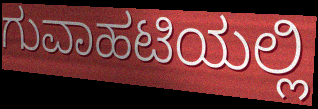
ಗುವಾಹಟಿಯಲ್ಲಿ